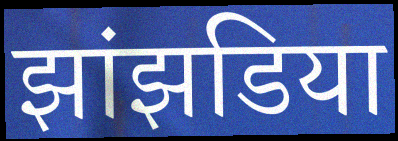
झांझडिया